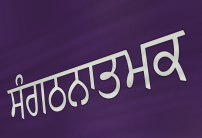
ਸੰਗਠਨਾਤਮਕ